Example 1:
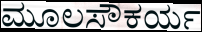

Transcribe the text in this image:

ಮೂಲಸೌಕರ್ಯ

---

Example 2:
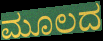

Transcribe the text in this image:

ಮೂಲದ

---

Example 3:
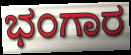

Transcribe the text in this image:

ಭಂಗಾರ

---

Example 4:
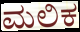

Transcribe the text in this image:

ಮಲಿಕ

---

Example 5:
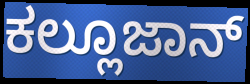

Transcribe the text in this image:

ಕಲ್ಲೂಜಾನ್